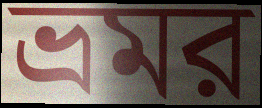
ভ্রমর